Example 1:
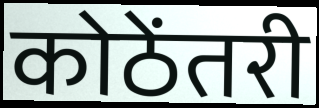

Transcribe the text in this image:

कोठेंतरी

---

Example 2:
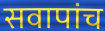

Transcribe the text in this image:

सवापांच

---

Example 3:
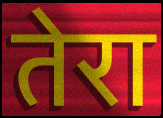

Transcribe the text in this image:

तेरा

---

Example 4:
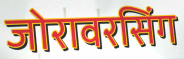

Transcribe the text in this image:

जोरावरसिंग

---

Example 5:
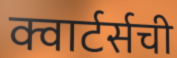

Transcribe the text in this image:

क्वार्टर्सची